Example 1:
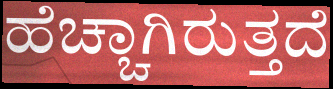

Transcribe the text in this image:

ಹೆಚ್ಚಾಗಿರುತ್ತದೆ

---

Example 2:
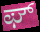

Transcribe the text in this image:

ಘ್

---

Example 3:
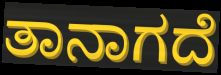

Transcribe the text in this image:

ತಾನಾಗದೆ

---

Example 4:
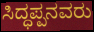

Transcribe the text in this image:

ಸಿದ್ಧಪ್ಪನವರು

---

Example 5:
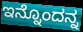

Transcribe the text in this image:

ಇನ್ನೊಂದನ್ನ